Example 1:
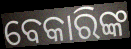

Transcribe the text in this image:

ବେକାରିଙ୍କ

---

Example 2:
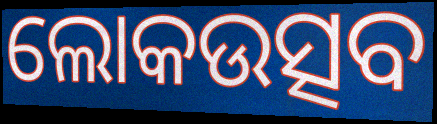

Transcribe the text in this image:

ଲୋକଉତ୍ସବ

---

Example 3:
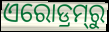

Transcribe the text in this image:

ଏରୋଡ୍ରମ୍‍ରୁ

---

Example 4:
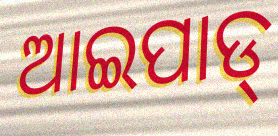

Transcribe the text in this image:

ଆଇପାଡ୍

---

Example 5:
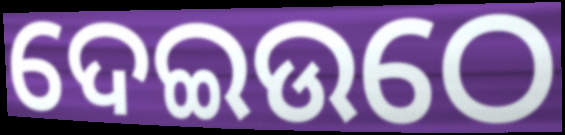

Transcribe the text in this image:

ଦେଇଉଠେ